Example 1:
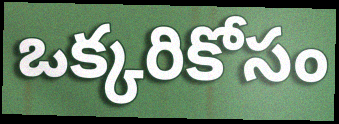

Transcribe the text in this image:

ఒక్కరికోసం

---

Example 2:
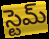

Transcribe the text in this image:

స్టెమ్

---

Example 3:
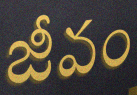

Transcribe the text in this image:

జీవం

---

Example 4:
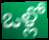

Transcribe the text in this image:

ఒళ్లో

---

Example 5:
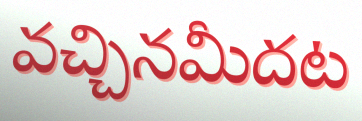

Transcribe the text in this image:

వచ్చినమీదట